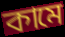
কামে